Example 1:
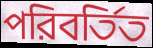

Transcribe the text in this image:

পরিবর্তিত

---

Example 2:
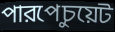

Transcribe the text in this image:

পারপেচুয়েট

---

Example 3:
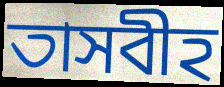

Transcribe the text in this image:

তাসবীহ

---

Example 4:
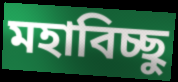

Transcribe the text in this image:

মহাবিচ্ছু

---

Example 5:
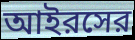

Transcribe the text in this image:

আইরসের